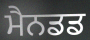
ਮੈਨਡਡ